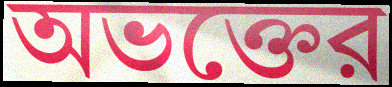
অভক্তের